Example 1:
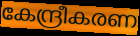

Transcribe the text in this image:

കേന്ദ്രീകരണ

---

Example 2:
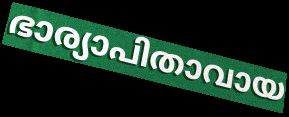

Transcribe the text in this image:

ഭാര്യാപിതാവായ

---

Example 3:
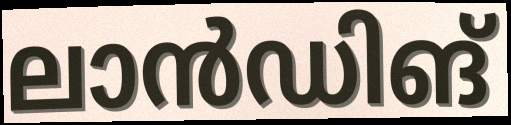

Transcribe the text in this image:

ലാൻഡിങ്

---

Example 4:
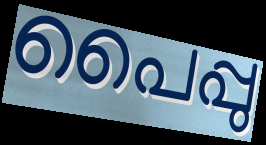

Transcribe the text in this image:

പൈപ്പു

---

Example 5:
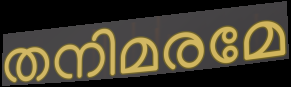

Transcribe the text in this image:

തനിമരമേ